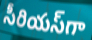
సీరియస్‌గా